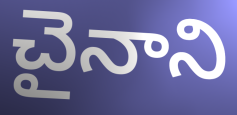
చైనాని